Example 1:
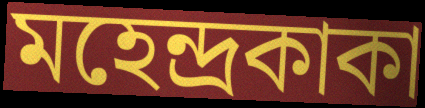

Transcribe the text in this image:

মহেন্দ্রকাকা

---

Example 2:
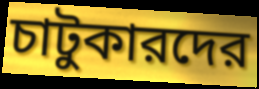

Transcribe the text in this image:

চাটুকারদের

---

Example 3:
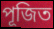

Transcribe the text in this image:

পূজিত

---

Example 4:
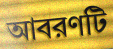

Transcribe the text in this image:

আবরণটি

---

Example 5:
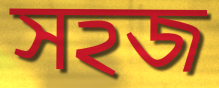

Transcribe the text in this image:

সহজ